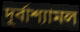
দূর্বাশ্যামল